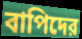
বাপিদের